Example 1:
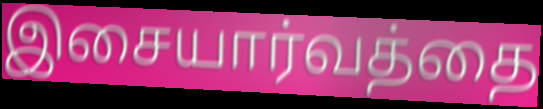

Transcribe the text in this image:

இசையார்வத்தை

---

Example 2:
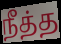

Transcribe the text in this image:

நீத்த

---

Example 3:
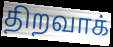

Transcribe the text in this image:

திறவாக்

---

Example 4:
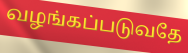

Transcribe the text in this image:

வழங்கப்படுவதே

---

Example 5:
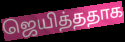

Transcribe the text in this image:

ஜெயித்ததாக